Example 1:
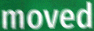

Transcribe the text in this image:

moved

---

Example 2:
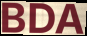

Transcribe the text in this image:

BDA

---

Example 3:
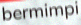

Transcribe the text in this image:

bermimpi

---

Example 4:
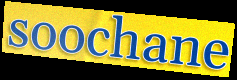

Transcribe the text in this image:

soochane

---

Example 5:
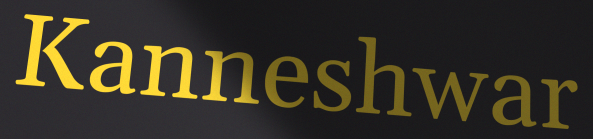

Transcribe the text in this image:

Kanneshwar